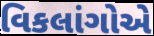
વિકલાંગોએ